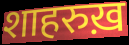
शाहरुख़